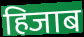
हिजाब